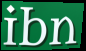
ibn